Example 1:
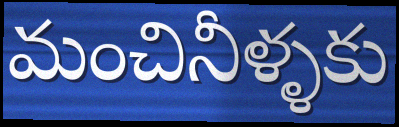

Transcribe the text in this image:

మంచినీళ్ళకు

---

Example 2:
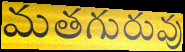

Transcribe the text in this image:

మతగురువు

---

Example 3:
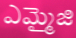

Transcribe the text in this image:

ఎమ్మైజి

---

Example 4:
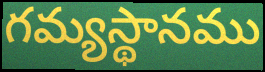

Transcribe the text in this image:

గమ్యస్థానము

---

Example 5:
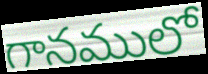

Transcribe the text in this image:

గానములో